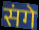
संगे